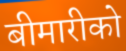
बीमारीको